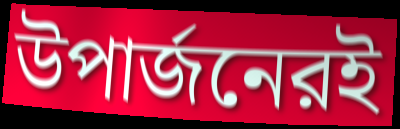
উপার্জনেরই